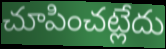
చూపించట్లేదు